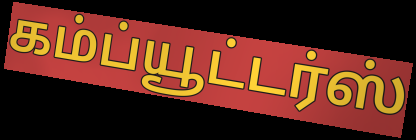
கம்ப்யூட்டர்ஸ்